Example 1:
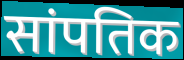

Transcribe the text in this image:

सांपतिक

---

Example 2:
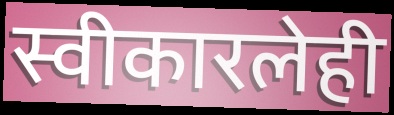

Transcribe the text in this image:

स्वीकारलेही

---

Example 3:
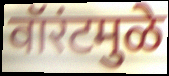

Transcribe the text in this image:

वॉरंटमुळे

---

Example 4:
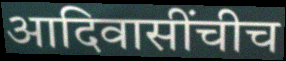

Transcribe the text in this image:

आदिवासींचीच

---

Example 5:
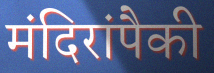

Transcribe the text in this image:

मंदिरांपैकी